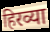
हिरव्या